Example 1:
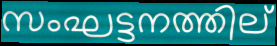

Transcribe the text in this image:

സംഘട്ടനത്തില്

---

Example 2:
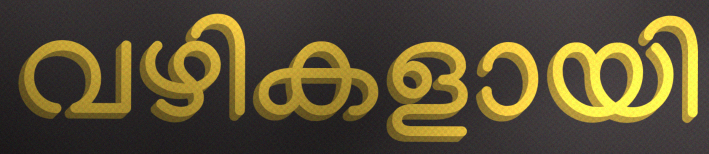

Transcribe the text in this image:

വഴികളായി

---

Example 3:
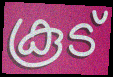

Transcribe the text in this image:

കൂട്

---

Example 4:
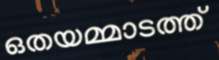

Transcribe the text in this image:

ഒതയമ്മാടത്ത്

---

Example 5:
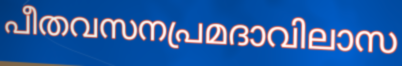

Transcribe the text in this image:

പീതവസനപ്രമദാവിലാസ